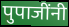
पुपाजींनी